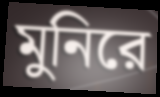
মুনিরে